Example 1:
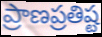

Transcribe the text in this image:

ప్రాణప్రతిష్ట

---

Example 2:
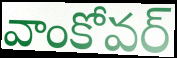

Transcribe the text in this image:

వాంకోవర్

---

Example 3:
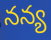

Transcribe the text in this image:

నన్య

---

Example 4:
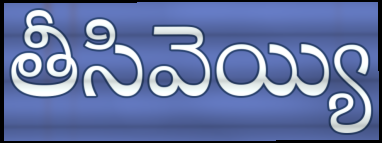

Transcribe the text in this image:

తీసివెయ్యి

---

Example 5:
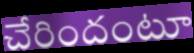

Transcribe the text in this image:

చేరిందంటూ